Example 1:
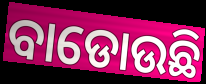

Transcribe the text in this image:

ବାଡୋଉଛି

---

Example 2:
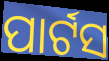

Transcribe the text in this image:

ପାର୍ଟସ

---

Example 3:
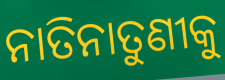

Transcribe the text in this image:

ନାତିନାତୁଣୀକୁ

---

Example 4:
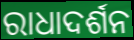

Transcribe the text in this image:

ରାଧାଦର୍ଶନ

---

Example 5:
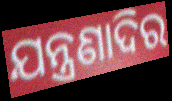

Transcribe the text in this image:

ଯନ୍ତ୍ରଣାଦିର